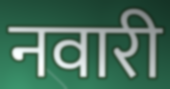
नवारी